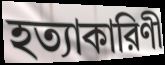
হত্যাকারিণী